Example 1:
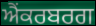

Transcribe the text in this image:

ਐਂਕਰਬਰਗ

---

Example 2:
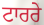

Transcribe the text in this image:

ਟਾਰਰੇ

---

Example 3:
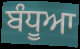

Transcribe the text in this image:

ਬੰਧੂਆ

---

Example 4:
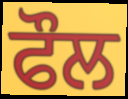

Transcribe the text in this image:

ਫੌਲ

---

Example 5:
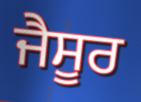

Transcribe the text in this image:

ਜੈਸੂਰ